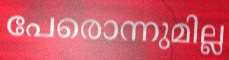
പേരൊന്നുമില്ല